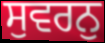
ਸੁਵਰਨੁ